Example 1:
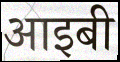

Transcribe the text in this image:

आइबी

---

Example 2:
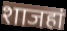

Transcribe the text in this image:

शाजहां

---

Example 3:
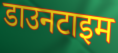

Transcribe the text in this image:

डाउनटाइम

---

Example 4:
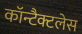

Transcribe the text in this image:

कॉन्टैक्टलेस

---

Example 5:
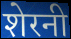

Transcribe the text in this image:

शेरनी